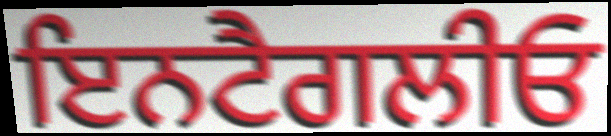
ਇਨਟੈਗਲੀਓ